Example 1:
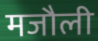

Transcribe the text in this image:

मजौली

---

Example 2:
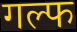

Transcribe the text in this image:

गल्फ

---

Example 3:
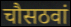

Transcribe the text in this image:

चौसठवां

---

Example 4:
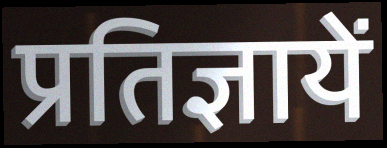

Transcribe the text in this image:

प्रतिज्ञायें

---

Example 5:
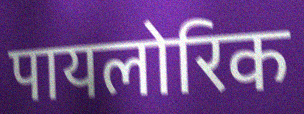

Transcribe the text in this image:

पायलोरिक